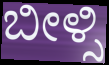
ಬೀಳ್ಸಿ